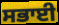
ਸਭਾਈ